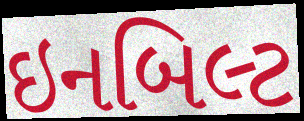
ઇનબિલ્ટ